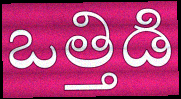
ఒత్తిడి